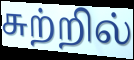
சுற்றில்